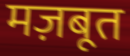
मज़बूत